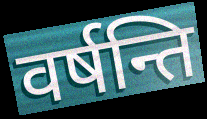
वर्षन्ति